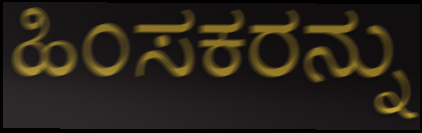
ಹಿಂಸಕರನ್ನು